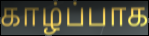
காழ்ப்பாக